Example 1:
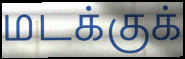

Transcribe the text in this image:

மடக்குக்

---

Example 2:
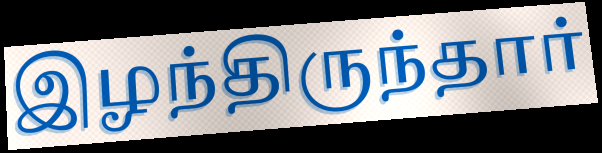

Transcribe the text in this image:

இழந்திருந்தார்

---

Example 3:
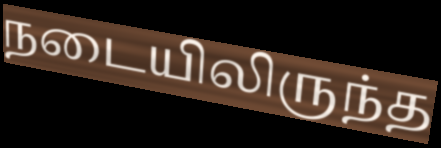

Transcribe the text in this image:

நடையிலிருந்த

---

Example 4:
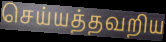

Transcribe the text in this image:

செய்யத்தவறிய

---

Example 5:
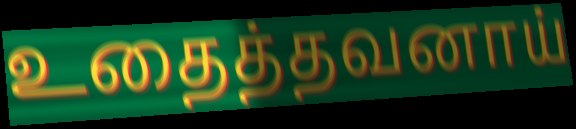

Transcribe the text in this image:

உதைத்தவனாய்